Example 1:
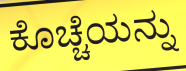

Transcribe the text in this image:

ಕೊಚ್ಚೆಯನ್ನು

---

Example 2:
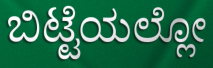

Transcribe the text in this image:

ಬಿಟ್ಟೆಯಲ್ಲೋ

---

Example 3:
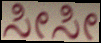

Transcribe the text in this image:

ಸೀಸೀ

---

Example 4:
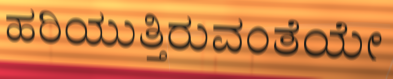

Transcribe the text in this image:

ಹರಿಯುತ್ತಿರುವಂತೆಯೇ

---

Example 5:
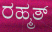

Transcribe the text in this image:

ರಹ್ಮತ್